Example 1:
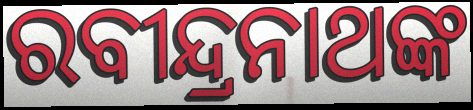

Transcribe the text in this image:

ରବୀନ୍ଦ୍ରନାଥଙ୍କ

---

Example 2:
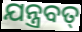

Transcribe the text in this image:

ଯନ୍ତ୍ରବତ୍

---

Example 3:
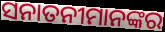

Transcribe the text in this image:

ସନାତନୀମାନଙ୍କର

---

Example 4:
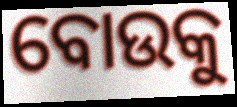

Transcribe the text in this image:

ବୋଉକୁ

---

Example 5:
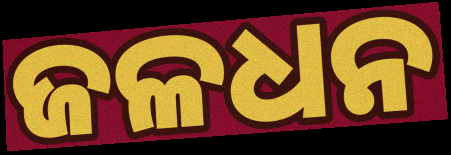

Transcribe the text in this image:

ଜଳଧନ